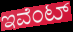
ಇವೆಂಟ್